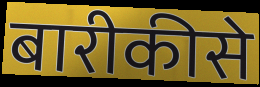
बारीकीसे